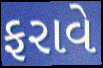
ફરાવે